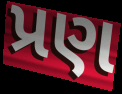
પ્રણ